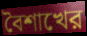
বৈশাখের